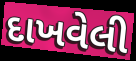
દાખવેલી